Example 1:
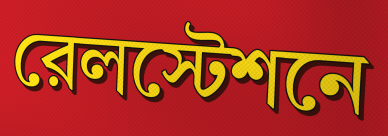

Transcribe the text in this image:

রেলস্টেশনে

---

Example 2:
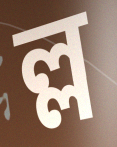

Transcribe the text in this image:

ল্ল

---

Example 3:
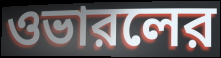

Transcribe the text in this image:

ওভারলের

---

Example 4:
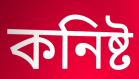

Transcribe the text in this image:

কনিষ্ট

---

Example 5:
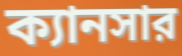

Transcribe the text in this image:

ক্যানসার